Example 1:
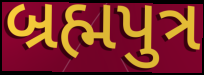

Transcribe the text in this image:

બ્રહ્મપુત્ર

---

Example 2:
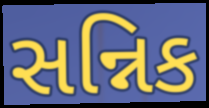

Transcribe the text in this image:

સન્નિક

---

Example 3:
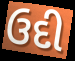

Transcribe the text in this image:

ઉદી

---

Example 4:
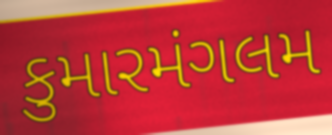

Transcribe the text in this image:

કુમારમંગલમ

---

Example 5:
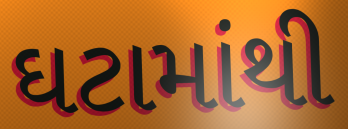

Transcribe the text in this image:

ઘટામાંથી